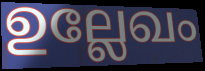
ഉല്ലേഖം